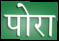
पोरा